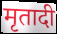
मृतादी